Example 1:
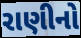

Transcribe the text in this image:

રાણીનો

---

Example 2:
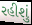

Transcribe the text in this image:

રહીશું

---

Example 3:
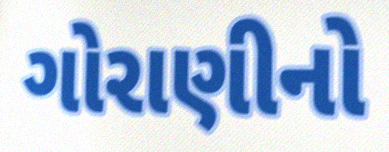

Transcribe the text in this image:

ગોરાણીનો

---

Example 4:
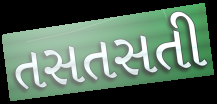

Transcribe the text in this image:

તસતસતી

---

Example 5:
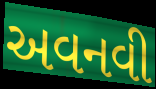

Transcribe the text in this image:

અવનવી